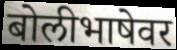
बोलीभाषेवर